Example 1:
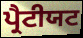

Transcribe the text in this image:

ਪ੍ਰੈਟੀਯਟ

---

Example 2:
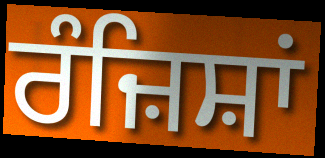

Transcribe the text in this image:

ਰੰਜ਼ਿਸ਼ਾਂ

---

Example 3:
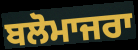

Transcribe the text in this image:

ਬਲੋਮਾਜਰਾ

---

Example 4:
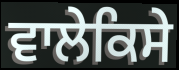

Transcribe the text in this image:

ਵਾਲੇਕਿਸੇ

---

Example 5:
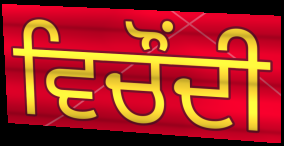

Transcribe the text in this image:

ਵਿਚੌਂਦੀ